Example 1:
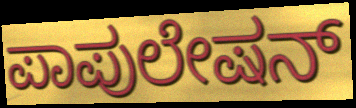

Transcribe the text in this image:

ಪಾಪುಲೇಷನ್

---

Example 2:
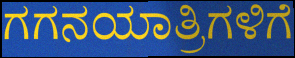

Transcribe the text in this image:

ಗಗನಯಾತ್ರಿಗಳಿಗೆ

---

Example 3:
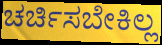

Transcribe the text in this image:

ಚರ್ಚಿಸಬೇಕಿಲ್ಲ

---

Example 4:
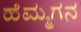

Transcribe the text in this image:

ಹೆಮ್ಮಗನ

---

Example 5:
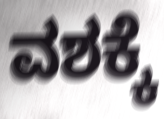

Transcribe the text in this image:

ವಶಕ್ಕೆ